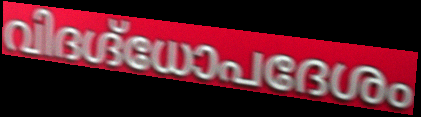
വിദഗ്ദ്ധോപദേശം